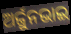
ଅର୍ଜୁନଭାଇ